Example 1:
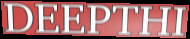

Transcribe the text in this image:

DEEPTHI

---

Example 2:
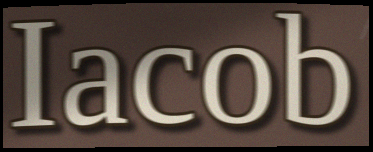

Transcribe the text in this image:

Iacob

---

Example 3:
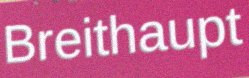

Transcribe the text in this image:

Breithaupt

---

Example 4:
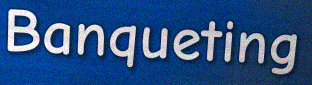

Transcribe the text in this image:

Banqueting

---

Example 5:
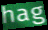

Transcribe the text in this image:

hag